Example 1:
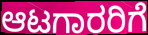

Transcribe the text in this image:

ಆಟಗಾರರಿಗೆ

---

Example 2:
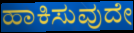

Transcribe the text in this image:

ಹಾಕಿಸುವುದೇ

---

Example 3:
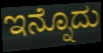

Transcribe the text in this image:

ಇನ್ನೊದು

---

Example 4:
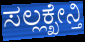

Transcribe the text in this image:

ಸಲ್ಲಕ್ಖೇನ್ತಿ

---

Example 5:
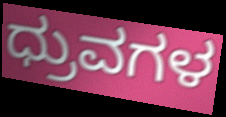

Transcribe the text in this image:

ಧ್ರುವಗಳ